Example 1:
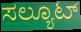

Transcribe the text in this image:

ಸಲ್ಯೂಟ್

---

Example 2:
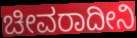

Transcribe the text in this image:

ಚೀವರಾದೀನಿ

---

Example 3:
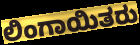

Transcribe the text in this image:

ಲಿಂಗಾಯಿತರು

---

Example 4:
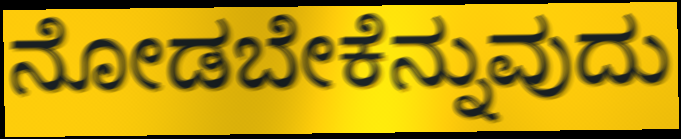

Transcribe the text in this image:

ನೋಡಬೇಕೆನ್ನುವುದು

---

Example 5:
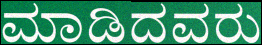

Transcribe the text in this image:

ಮಾಡಿದವರು